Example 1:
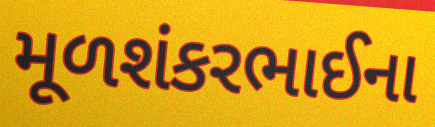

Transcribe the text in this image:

મૂળશંકરભાઈના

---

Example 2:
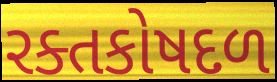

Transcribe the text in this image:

રક્તકોષદળ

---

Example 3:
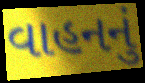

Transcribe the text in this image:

વાહનનું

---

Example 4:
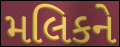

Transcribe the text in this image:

મલિકને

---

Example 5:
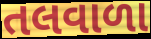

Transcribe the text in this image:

તલવાળા